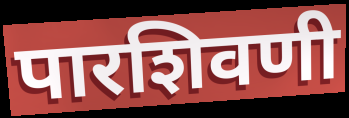
पारशिवणी